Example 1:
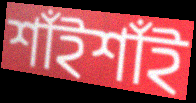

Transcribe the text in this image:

শাঁইশাঁই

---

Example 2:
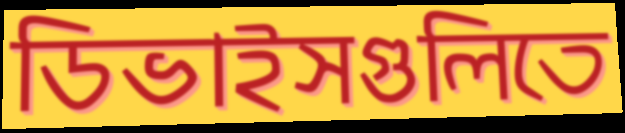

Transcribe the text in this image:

ডিভাইসগুলিতে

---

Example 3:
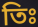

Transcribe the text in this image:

তিঃ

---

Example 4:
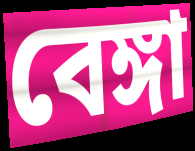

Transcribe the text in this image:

বেঙ্গা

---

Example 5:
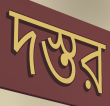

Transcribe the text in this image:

দস্তর